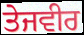
ਤੇਜਵੀਰ